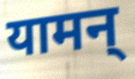
यामन्